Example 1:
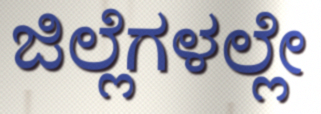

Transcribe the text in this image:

ಜಿಲ್ಲೆಗಳಲ್ಲೇ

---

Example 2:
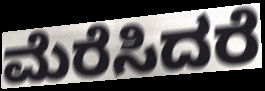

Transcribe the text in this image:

ಮೆರೆಸಿದರೆ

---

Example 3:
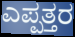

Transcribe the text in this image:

ಎಪ್ಪತ್ತರ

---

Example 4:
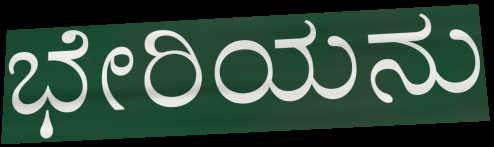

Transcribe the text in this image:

ಭೇರಿಯನು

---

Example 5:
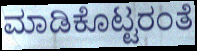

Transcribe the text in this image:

ಮಾಡಿಕೊಟ್ಟರಂತೆ